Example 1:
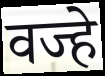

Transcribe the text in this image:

वज्हे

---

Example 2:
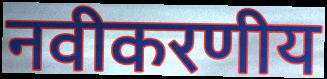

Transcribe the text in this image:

नवीकरणीय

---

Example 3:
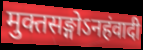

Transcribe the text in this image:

मुक्तसङ्गोऽनहंवादी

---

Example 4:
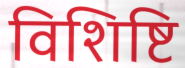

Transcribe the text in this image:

विशिष्टि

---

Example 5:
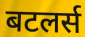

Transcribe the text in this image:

बटलर्स